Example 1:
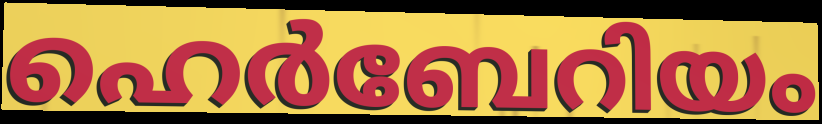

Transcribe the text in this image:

ഹെർബേറിയം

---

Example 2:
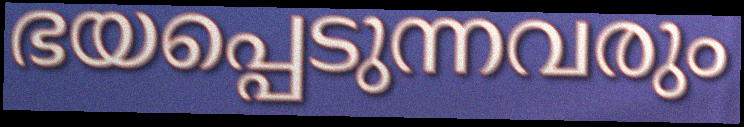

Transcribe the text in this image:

ഭയപ്പെടുന്നവരും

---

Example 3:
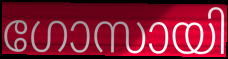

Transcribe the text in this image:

ഗോസായി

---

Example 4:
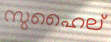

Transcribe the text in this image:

സുഹൈല്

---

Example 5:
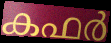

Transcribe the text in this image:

കഫർ